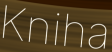
Kniha